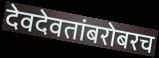
देवदेवतांबरोबरच